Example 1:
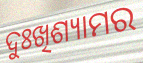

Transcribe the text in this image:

ଦୁଃଖିଶ୍ୟାମର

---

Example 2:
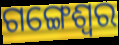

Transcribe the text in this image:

ଗଙ୍ଗେଶ୍ଵର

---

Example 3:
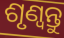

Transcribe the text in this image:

ଶୃଣ୍ଵନ୍ତୁ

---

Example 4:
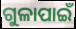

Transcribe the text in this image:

ଗୁଳାପାଇଁ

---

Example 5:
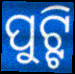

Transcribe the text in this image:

ପୁଟ୍ଟି